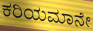
ಕರಿಯಮಾನೇ